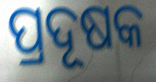
ପ୍ରଦୂଷକ